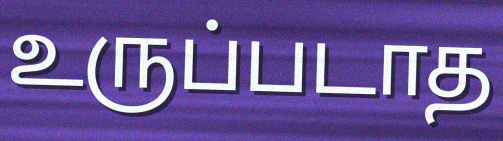
உருப்படாத